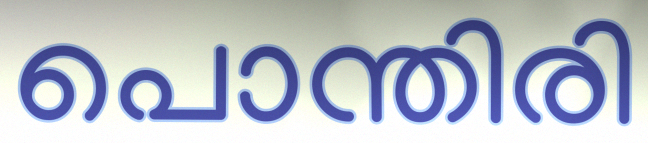
പൊന്തിരി